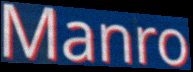
Manro